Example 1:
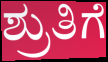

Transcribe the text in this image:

ಶ್ರುತಿಗೆ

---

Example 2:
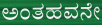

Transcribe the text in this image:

ಅಂತಹವನೇ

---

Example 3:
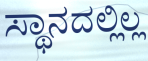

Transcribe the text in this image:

ಸ್ಥಾನದಲ್ಲಿಲ್ಲ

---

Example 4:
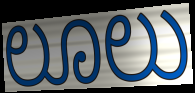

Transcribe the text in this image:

ಲೂಲು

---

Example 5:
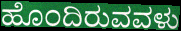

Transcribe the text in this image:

ಹೊಂದಿರುವವಳು